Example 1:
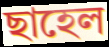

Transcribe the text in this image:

ছাহেল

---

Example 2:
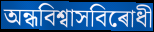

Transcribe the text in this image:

অন্ধবিশ্বাসবিৰোধী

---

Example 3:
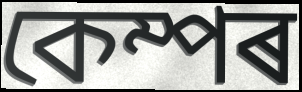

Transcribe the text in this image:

কেম্পৰ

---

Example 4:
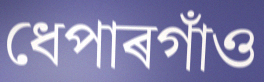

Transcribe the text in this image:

ধেপাৰগাঁও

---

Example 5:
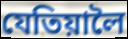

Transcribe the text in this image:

যেতিয়ালৈ